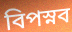
বিপস্নব